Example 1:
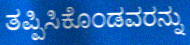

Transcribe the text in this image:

ತಪ್ಪಿಸಿಕೊಂಡವರನ್ನು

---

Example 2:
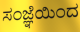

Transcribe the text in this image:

ಸಂಜ್ಞೆಯಿಂದ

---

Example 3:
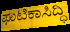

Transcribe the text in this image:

ಘುಟಿಕಾಸಿದ್ಧಿ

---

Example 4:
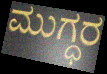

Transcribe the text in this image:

ಮುಗ್ಧರ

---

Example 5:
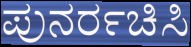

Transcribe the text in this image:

ಪುನರ್ರಚಿಸಿ